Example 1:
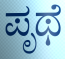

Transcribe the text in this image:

ಪೃಥೆ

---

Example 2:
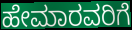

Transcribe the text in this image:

ಹೇಮಾರವರಿಗೆ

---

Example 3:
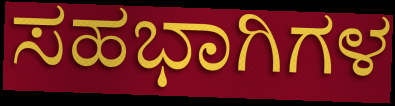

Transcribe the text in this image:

ಸಹಭಾಗಿಗಳ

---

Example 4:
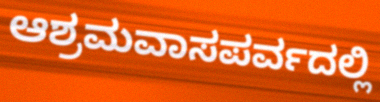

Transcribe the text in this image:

ಆಶ್ರಮವಾಸಪರ್ವದಲ್ಲಿ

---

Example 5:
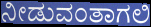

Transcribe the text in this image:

ನೀಡುವಂತಾಗಲಿ